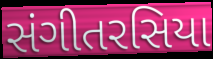
સંગીતરસિયા